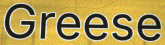
Greese